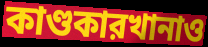
কাণ্ডকারখানাও